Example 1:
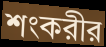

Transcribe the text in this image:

শংকরীর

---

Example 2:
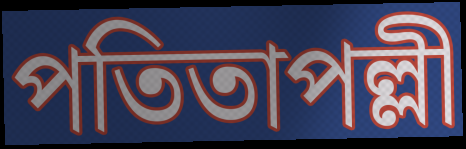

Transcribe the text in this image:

পতিতাপল্লী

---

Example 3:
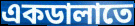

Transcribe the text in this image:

একডালাতে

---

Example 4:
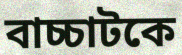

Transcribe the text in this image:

বাচ্চাটকে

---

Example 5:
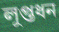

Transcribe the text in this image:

লুপ্তধন